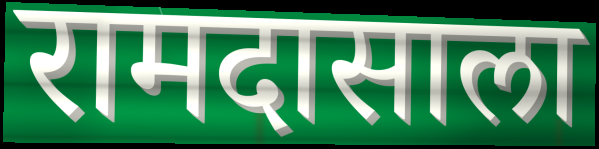
रामदासाला